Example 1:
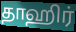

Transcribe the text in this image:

தாஹிர்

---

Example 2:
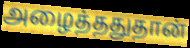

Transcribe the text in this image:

அழைத்ததுதான்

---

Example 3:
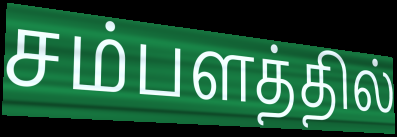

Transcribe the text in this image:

சம்பளத்தில்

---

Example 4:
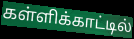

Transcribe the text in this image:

கள்ளிக்காட்டில்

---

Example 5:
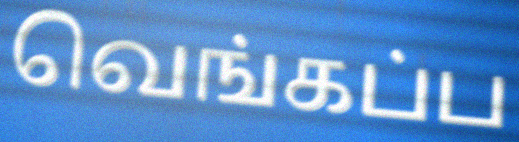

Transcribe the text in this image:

வெங்கப்ப